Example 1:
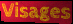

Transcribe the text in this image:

Visages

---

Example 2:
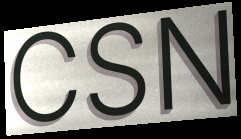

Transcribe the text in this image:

CSN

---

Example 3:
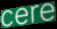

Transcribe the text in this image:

cere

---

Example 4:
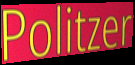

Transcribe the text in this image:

Politzer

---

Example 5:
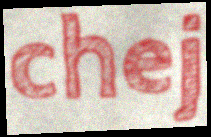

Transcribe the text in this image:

chej